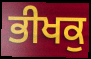
ਭੀਖਕੁ